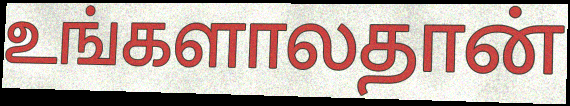
உங்களாலதான்